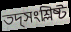
তদ্‌সংশ্লিষ্ট